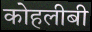
कोहलीबी